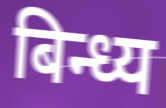
बिन्ध्य